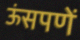
ऊंसपणें